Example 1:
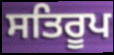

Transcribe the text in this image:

ਸਤਿਰੂਪ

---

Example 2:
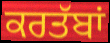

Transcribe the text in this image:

ਕਰਤੱਬਾਂ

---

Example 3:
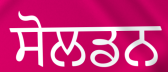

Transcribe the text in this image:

ਸੋਲਡਨ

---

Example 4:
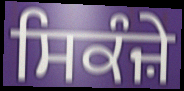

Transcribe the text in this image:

ਸਿਕੰਜ਼ੇ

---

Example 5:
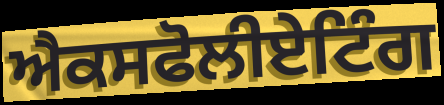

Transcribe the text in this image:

ਐਕਸਫੋਲੀਏਟਿੰਗ